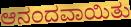
ಆನಂದವಾಯಿತು